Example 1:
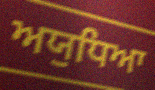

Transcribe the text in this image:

ਅਯੁਧਿਆ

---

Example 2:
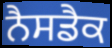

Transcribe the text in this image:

ਨੈਸਡੈਕ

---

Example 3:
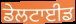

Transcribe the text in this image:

ਡੇਲਟਾਈਡ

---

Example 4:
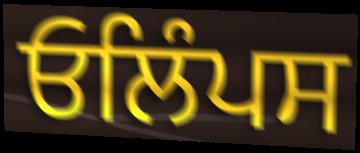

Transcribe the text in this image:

ਓਲਿੰਪਸ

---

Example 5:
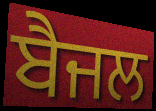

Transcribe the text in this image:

ਬੈਜਲ